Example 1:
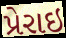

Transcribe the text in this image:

પ્રેરાઇ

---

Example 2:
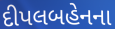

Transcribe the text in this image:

દીપલબહેનના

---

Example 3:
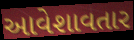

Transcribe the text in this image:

આવેશાવતાર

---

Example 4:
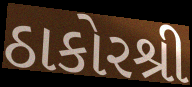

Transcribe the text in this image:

ઠાકોરશ્રી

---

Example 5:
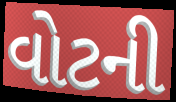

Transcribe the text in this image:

વોટની